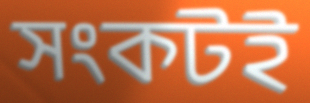
সংকটই